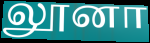
லூனா